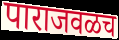
पाराजवळच